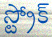
స్ట్రోక్